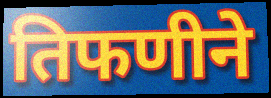
तिफणीने